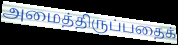
அமைத்திருப்பதைக்